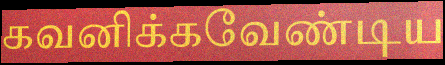
கவனிக்கவேண்டிய